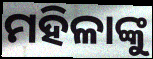
ମହିଳାଙ୍କୁ